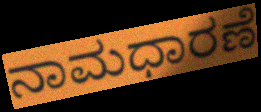
ನಾಮಧಾರಣೆ